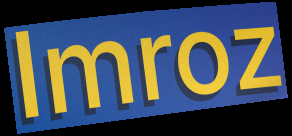
Imroz